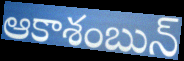
ఆకాశంబున్